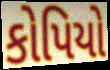
કોપિયો